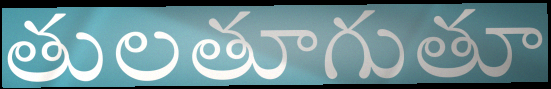
తులతూగుతూ